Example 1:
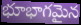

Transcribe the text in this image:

భూభాగమైన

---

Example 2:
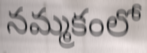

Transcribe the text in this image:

నమ్మకంలో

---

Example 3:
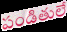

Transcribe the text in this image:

పండితులే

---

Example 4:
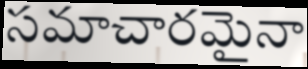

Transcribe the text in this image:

సమాచారమైనా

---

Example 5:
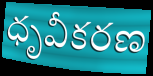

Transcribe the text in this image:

ధృవీకరణ